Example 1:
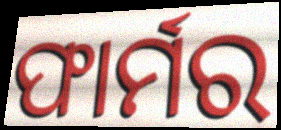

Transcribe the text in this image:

ଫାର୍ମର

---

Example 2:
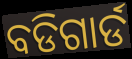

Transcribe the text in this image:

ବଡିଗାର୍ଡ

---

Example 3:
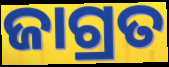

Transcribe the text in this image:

ଜାଗ୍ରତ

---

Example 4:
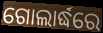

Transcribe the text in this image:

ଗୋଲାର୍ଦ୍ଧରେ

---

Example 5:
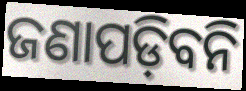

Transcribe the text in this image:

ଜଣାପଡ଼ିବନି